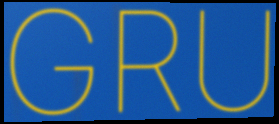
GRU